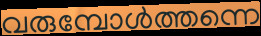
വരുമ്പോൾത്തന്നെ